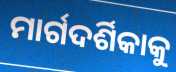
ମାର୍ଗଦର୍ଶିକାକୁ